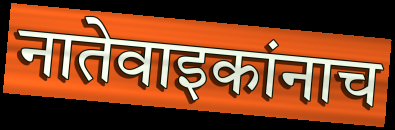
नातेवाइकांनाच